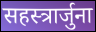
सहस्त्रार्जुना